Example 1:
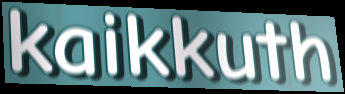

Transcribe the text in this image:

kaikkuth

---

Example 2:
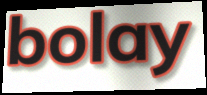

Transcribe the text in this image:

bolay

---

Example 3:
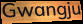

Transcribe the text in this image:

Gwangju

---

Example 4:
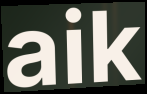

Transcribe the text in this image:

aik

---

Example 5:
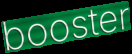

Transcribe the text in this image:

booster